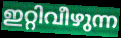
ഇറ്റിവീഴുന്ന